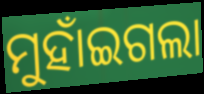
ମୁହାଁଇଗଲା